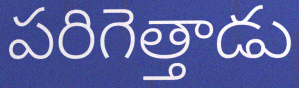
పరిగెత్తాడు